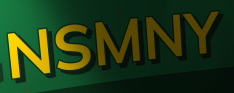
NSMNY